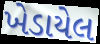
ખેડાયેલ